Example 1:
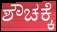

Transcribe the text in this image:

ಶೌಚಕ್ಕೆ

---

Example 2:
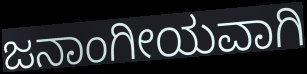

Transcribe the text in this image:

ಜನಾಂಗೀಯವಾಗಿ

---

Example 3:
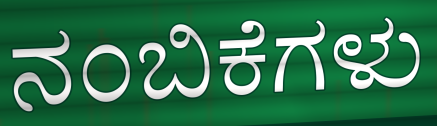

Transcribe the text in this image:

ನಂಬಿಕೆಗಳು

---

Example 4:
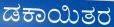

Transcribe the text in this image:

ಡಕಾಯಿತರ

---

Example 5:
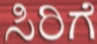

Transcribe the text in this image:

ಸಿರಿಗೆ